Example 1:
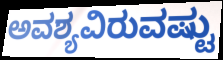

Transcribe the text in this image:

ಅವಶ್ಯವಿರುವಷ್ಟು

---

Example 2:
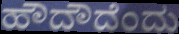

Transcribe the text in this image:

ಹೌದೌದೆಂದು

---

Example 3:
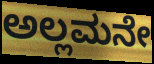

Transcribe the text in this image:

ಅಲ್ಲಮನೇ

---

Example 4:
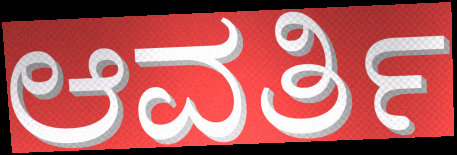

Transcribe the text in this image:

ಆವರ್ತಿ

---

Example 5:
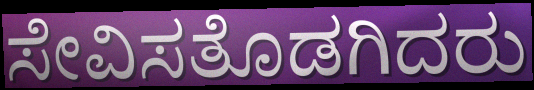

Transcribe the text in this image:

ಸೇವಿಸತೊಡಗಿದರು